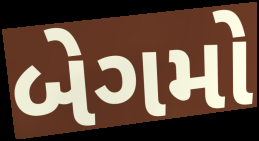
બેગમો